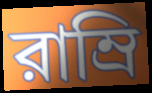
রাম্রি